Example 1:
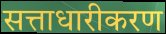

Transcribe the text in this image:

सत्ताधारीकरण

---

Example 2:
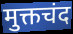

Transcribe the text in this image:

मुक्तचंद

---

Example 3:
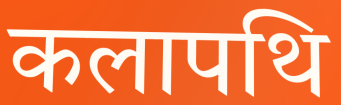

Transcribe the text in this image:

कलापथि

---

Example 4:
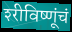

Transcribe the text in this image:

श्रीविष्णूंचं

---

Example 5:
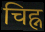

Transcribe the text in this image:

चिह्न